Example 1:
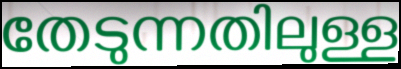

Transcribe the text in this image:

തേടുന്നതിലുള്ള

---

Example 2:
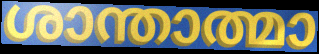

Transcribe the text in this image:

ശാന്താത്മാ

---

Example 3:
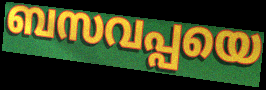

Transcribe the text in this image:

ബസവപ്പയെ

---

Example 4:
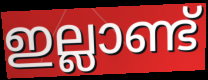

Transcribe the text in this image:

ഇല്ലാണ്ട്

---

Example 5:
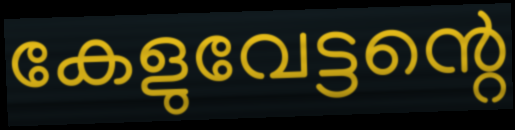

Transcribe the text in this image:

കേളുവേട്ടന്റെ